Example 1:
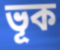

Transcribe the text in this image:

ভূক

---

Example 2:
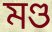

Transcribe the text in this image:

মণ্ড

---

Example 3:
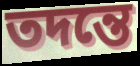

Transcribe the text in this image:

তদন্তে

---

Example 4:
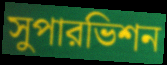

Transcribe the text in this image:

সুপারভিশন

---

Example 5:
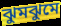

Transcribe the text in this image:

ঝুমঝুমে